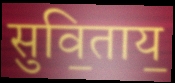
सुवि॒ताय॒